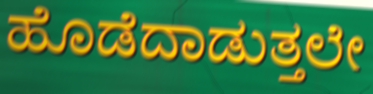
ಹೊಡೆದಾಡುತ್ತಲೇ